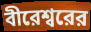
বীরেশ্বরের